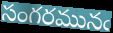
సంగరమునఁ